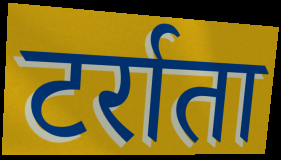
टर्राता